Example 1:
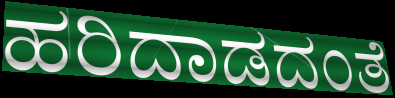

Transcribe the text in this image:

ಹರಿದಾಡದಂತೆ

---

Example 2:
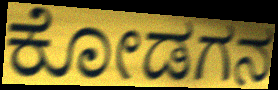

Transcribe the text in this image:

ಕೋಡಗನ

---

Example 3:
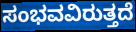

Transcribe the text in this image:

ಸಂಭವವಿರುತ್ತದೆ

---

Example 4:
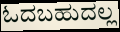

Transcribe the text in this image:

ಓದಬಹುದಲ್ಲ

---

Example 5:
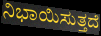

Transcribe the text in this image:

ನಿಭಾಯಿಸುತ್ತದೆ